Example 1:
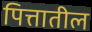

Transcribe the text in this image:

पित्तातील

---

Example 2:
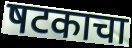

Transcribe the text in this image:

षटकाचा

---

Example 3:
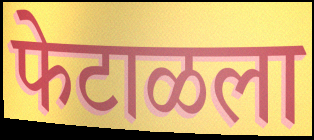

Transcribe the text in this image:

फेटाळला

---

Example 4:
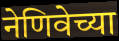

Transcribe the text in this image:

नेणिवेच्या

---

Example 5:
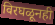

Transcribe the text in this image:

विरघळूनही